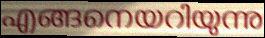
എങ്ങനെയറിയുന്നു